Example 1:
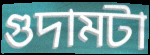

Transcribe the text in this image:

গুদামটা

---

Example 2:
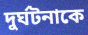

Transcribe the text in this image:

দুর্ঘটনাকে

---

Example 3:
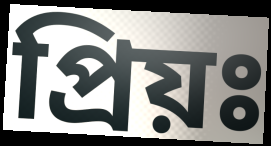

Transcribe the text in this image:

প্রিয়ঃ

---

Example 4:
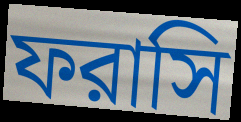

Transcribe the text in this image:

ফরাসি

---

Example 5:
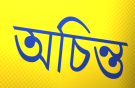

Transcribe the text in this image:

অচিন্ত